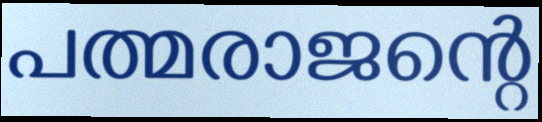
പത്മരാജന്റെ